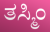
ತಸ್ಮಿಂ